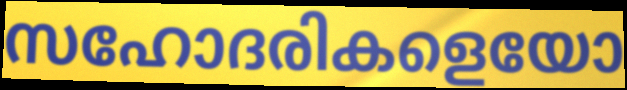
സഹോദരികളെയോ